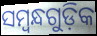
ସମ୍ବନ୍ଧଗୁଡ଼ିକ